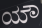
ಯೌ